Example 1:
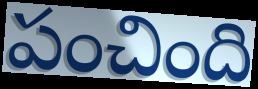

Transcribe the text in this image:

పంచింది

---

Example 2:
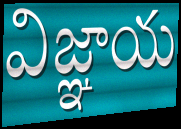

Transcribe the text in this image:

విజ్ఞాయ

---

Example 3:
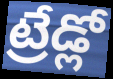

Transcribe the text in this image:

ట్రేడ్లో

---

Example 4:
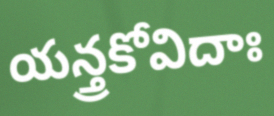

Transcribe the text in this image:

యన్త్రకోవిదాః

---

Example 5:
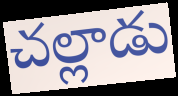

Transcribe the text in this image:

చల్లాడు